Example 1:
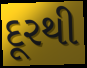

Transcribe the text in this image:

દૂરથી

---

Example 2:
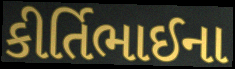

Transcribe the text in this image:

કીર્તિભાઈના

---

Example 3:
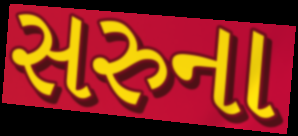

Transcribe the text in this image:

સરુના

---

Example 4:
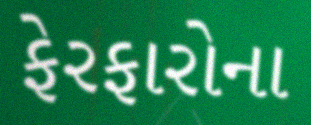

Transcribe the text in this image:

ફેરફારોના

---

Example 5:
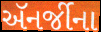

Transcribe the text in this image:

ઍનર્જીના